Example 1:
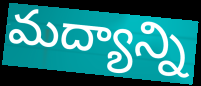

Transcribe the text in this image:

మద్యాన్ని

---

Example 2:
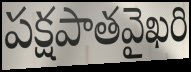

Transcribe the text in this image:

పక్షపాతవైఖరి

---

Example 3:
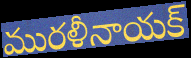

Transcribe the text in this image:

మురళీనాయక్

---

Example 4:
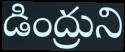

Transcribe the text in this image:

డింద్రుని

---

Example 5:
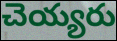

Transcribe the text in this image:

చెయ్యరు